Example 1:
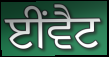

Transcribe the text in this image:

ਈਂਵੈਟ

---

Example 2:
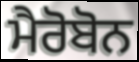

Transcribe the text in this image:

ਮੈਰੋਬੋਨ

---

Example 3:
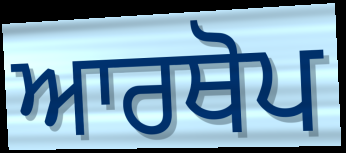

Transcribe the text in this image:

ਆਰਥੋਪ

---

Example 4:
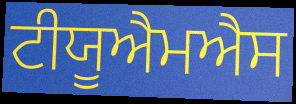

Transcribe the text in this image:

ਟੀਯੂਐਮਐਸ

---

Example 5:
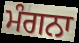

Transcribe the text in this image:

ਮੰਗਨਾ